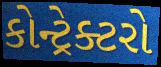
કોન્ટ્રેક્ટરો